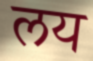
लय